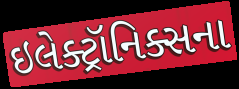
ઇલેક્ટ્રૉનિક્સના